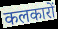
कलकारों